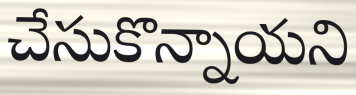
చేసుకొన్నాయని